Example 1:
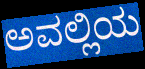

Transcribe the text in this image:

ಅವಲ್ಲಿಯ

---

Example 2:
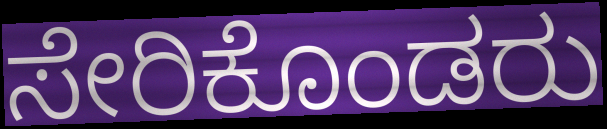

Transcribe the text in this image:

ಸೇರಿಕೊಂಡರು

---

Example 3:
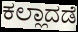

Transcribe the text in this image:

ಕಲ್ಲಾದಡೆ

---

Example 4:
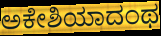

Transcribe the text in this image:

ಅಕೇಶಿಯಾದಂಥ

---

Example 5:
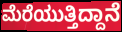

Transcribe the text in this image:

ಮೆರೆಯುತ್ತಿದ್ದಾನೆ